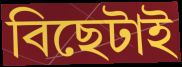
বিছেটাই